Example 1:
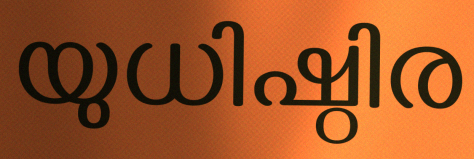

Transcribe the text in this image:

യുധിഷ്ഠിര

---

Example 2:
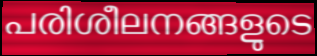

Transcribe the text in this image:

പരിശീലനങ്ങളുടെ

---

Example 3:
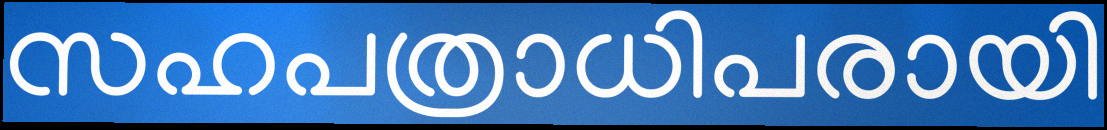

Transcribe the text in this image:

സഹപത്രാധിപരായി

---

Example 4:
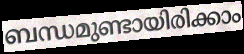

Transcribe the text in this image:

ബന്ധമുണ്ടായിരിക്കാം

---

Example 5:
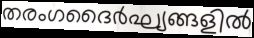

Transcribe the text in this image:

തരംഗദൈർഘ്യങ്ങളിൽ